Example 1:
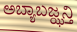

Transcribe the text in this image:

ಅಬ್ಯಾಬಜ್ಝನ್ತಿ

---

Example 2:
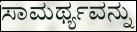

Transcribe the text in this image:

ಸಾಮರ್ಥ್ಯವನ್ನು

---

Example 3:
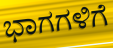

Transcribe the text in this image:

ಭಾಗಗಳಿಗೆ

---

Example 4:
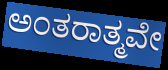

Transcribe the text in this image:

ಅಂತರಾತ್ಮವೇ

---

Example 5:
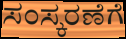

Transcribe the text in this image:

ಸಂಸ್ಕರಣೆಗೆ